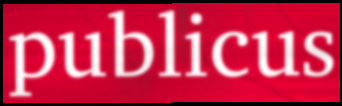
publicus